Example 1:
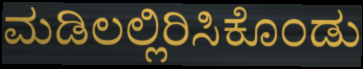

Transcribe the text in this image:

ಮಡಿಲಲ್ಲಿರಿಸಿಕೊಂಡು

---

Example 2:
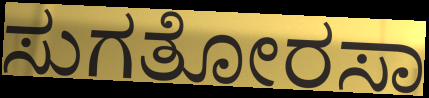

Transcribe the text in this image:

ಸುಗತೋರಸಾ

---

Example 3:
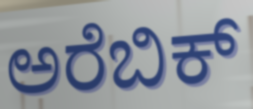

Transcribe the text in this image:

ಅರೆಬಿಕ್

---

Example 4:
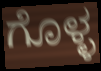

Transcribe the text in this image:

ಗೊಳ್ಳ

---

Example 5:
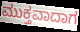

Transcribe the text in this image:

ಮುಕ್ತವಾದಾಗ